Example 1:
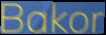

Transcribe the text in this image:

Bakor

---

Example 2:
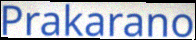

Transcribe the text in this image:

Prakarano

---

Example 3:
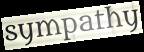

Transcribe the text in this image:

sympathy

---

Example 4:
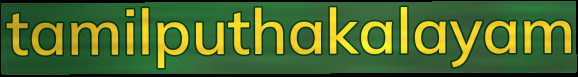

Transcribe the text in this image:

tamilputhakalayam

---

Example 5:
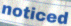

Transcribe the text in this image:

noticed